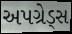
અપગ્રેડ્સ